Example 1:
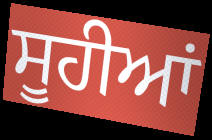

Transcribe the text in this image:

ਸੂਹੀਆਂ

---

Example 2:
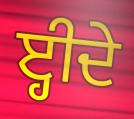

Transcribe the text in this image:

ੲ੍ਹੀਦੇ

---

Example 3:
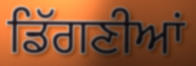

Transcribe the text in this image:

ਡਿੱਗਣੀਆਂ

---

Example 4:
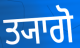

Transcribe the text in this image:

ਤ੍ਯਾਗੋ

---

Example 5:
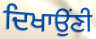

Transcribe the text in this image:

ਦਿਖਾਉਂਣੀ